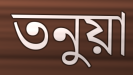
তনুয়া